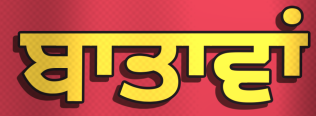
ਬਾਤਾਵਾਂ